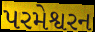
પરમેશ્વરન